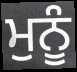
ਮੁਨੂੰ